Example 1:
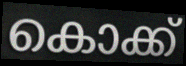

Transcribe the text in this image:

കൊക്ക്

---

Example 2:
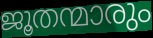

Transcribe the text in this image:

ജൂതന്മാരും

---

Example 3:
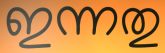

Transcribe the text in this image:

ഇന്നതു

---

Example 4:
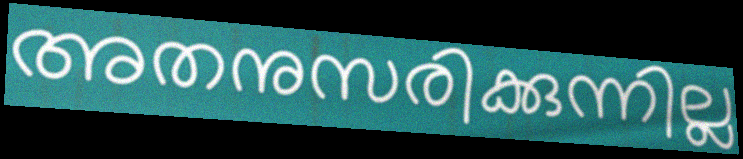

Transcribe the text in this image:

അതനുസരിക്കുന്നില്ല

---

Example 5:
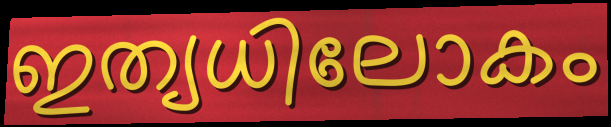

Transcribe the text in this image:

ഇത്യധിലോകം